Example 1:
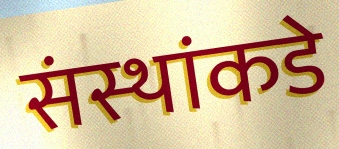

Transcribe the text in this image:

संस्थांकडे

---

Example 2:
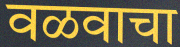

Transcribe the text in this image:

वळवाचा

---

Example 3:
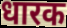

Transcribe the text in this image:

धारक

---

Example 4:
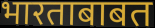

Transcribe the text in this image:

भारताबाबत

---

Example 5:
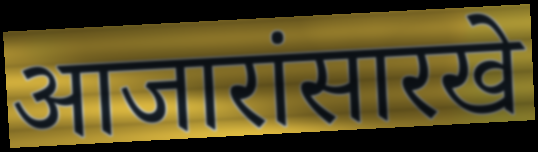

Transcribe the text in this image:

आजारांसारखे